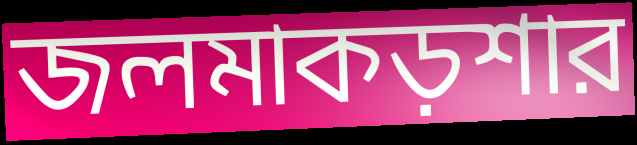
জলমাকড়শার